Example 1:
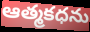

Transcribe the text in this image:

ఆత్మకధను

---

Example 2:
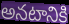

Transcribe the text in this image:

అనటానికి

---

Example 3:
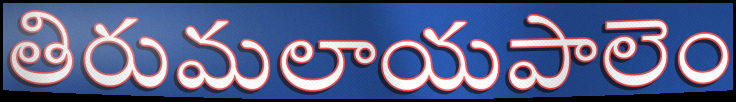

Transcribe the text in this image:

తిరుమలాయపాలెం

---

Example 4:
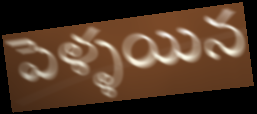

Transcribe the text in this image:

పెళ్ళయిన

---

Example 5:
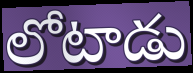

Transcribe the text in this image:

లోటాడు